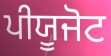
ਪੀਯੂਜੋਟ